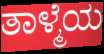
ತಾಳ್ಮೆಯ